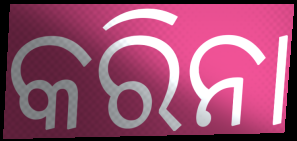
କରିନା